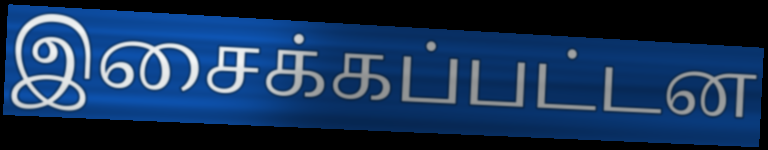
இசைக்கப்பட்டன